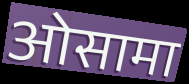
ओसामा